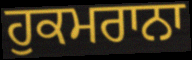
ਹੁਕਮਰਾਨਾ